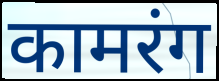
कामरंग